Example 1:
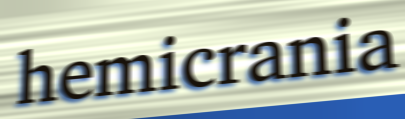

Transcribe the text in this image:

hemicrania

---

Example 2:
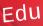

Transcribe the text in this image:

Edu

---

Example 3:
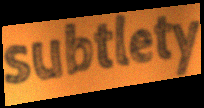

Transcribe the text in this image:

subtlety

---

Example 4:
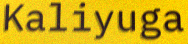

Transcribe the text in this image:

Kaliyuga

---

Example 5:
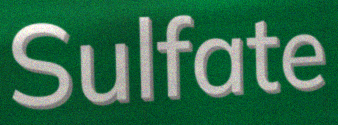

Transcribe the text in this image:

Sulfate